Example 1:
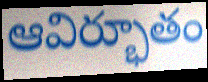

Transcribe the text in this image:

ఆవిర్భూతం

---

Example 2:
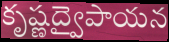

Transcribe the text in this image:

కృష్ణద్వైపాయన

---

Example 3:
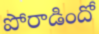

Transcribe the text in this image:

పోరాడిందో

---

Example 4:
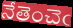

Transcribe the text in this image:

నేతెంచెఁ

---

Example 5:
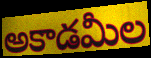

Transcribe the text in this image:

అకాడమీల